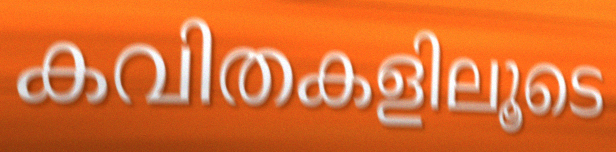
കവിതകളിലൂടെ